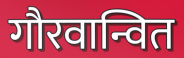
गौरवान्वित